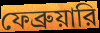
ফেব্রুয়ারি